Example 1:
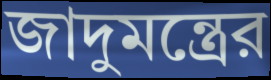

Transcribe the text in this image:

জাদুমন্ত্রের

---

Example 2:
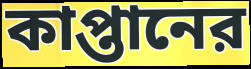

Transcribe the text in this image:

কাপ্তানের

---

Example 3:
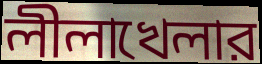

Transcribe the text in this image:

লীলাখেলার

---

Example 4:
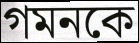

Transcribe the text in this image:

গমনকে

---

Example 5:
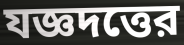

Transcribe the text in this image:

যজ্ঞদত্তের